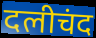
दलीचंद